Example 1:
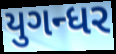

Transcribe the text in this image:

યુગન્ધર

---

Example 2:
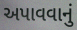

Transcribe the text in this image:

અપાવવાનું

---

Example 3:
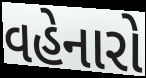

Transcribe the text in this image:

વહેનારો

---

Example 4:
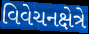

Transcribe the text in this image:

વિવેચનક્ષેત્રે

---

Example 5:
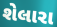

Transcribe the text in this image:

શેલારા